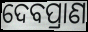
ଦେବପ୍ରାଣ